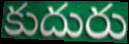
కుదురు